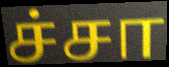
ச்சா